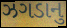
ઝગડાનુ